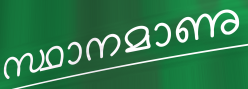
സ്ഥാനമാണു